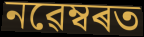
নৱেম্বৰত